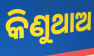
କିଣୁଥାଅ